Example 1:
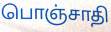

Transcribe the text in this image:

பொஞ்சாதி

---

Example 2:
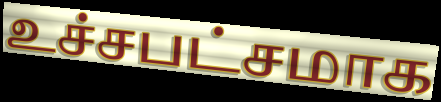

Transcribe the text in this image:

உச்சபட்சமாக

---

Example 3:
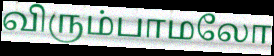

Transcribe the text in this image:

விரும்பாமலோ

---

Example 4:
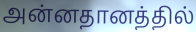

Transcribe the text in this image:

அன்னதானத்தில்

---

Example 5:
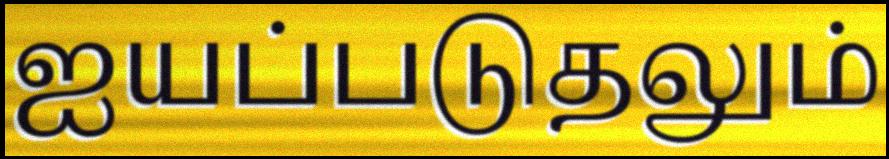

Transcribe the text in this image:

ஐயப்படுதலும்